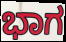
ಭಾಗ